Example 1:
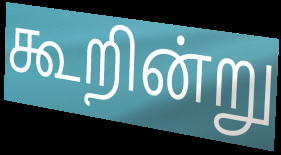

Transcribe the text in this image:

கூறின்று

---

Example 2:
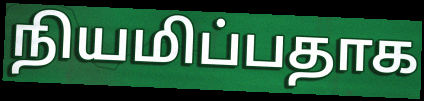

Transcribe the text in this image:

நியமிப்பதாக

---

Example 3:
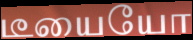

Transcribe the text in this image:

டீயையோ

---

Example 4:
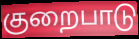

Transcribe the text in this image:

குறைபாடு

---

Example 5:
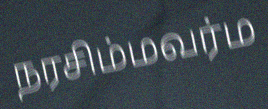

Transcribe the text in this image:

நரசிம்மவர்ம